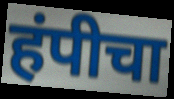
हंपीचा